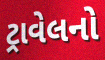
ટ્રાવેલનો